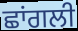
ਛਾਂਗਲੀ